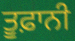
ਤੂਫ਼ਾਨੀ